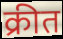
क्रीत